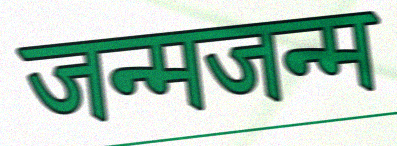
जन्मजन्म